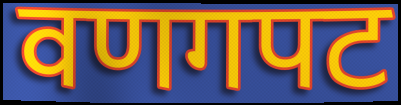
वणगपट